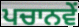
ਪਚਾਨਵੇਂ